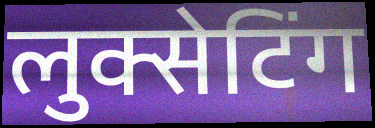
लुक्सेटिंग